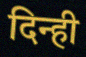
दिन्ही